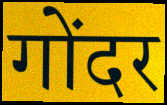
गोंदर